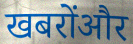
खबरोंऔर